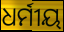
ଧର୍ମୀୟ